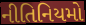
નીતિનિયમો